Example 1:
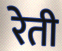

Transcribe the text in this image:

रेती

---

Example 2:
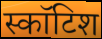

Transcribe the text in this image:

स्कॉटिश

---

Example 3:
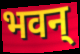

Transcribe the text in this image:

भवन्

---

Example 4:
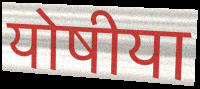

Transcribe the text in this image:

योषीया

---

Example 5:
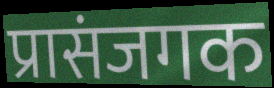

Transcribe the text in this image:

प्रासंजगक